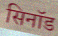
सिनॉड